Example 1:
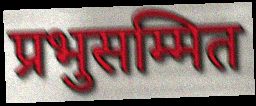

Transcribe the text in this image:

प्रभुसम्मित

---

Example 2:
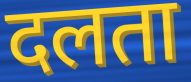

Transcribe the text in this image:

दलता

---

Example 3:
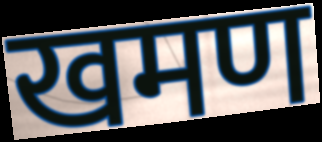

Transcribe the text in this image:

खमण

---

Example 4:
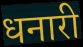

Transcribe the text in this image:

धनारी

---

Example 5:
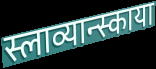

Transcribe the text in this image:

स्लाव्यान्स्काया